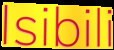
Isibili